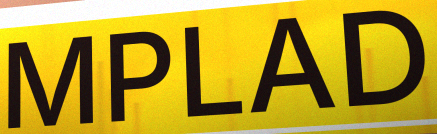
MPLAD